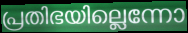
പ്രതിഭയില്ലെന്നോ